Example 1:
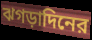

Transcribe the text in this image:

ঝগড়াদিনের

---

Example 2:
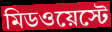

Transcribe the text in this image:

মিডওয়েস্টে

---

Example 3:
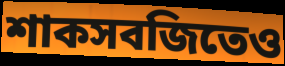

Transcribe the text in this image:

শাকসবজিতেও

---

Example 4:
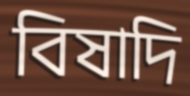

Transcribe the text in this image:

বিষাদি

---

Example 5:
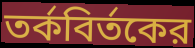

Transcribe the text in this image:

তর্কবির্তকের